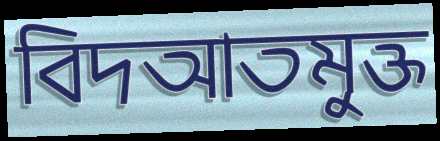
বিদআতমুক্ত